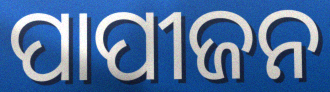
ପାପୀଜନ